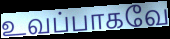
உவப்பாகவே